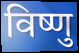
विष्णु